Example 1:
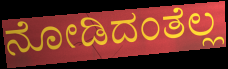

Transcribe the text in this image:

ನೋಡಿದಂತೆಲ್ಲ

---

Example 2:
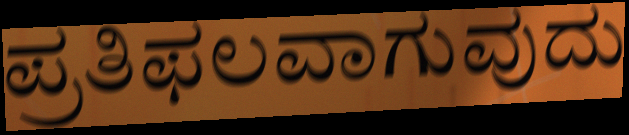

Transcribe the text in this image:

ಪ್ರತಿಫಲವಾಗುವುದು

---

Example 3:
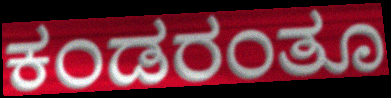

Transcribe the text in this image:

ಕಂಡರಂತೂ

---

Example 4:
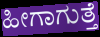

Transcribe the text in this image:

ಹೀಗಾಗುತ್ತೆ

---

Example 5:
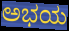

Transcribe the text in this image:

ಅಭಯ